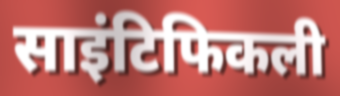
साइंटिफिकली